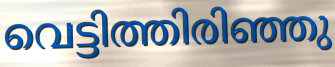
വെട്ടിത്തിരിഞ്ഞു